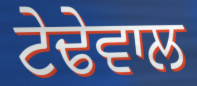
ਟੇਢੇਵਾਲ